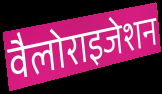
वैलोराइजेशन